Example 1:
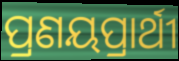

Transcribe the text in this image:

ପ୍ରଣୟପ୍ରାର୍ଥୀ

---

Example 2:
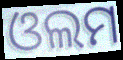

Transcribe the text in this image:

ଓଲମ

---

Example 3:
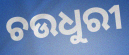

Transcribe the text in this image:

ଚଉଧୁରୀ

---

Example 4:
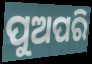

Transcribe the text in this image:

ପୁଅପରି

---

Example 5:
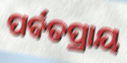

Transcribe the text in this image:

ପର୍ବତପ୍ରାୟ